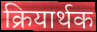
क्रियार्थक